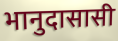
भानुदासासी